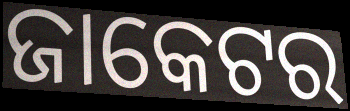
ଜାକେଟର